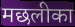
मछलीका